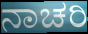
ನಾಚರಿ